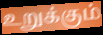
உறுக்கும்